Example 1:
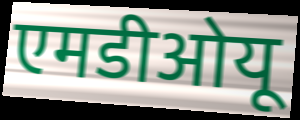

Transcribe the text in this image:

एमडीओयू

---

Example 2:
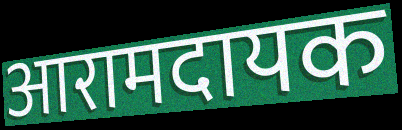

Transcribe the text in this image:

आरामदायक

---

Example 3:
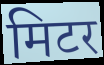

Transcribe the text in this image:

मिटर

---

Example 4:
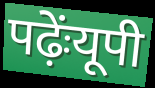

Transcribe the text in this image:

पढ़ेंःयूपी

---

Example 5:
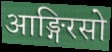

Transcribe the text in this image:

आङ्गिरसो